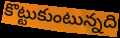
కొట్టుకుంటున్నది